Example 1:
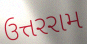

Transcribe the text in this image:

ઉત્તરરામ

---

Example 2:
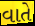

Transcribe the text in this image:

વાતે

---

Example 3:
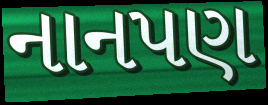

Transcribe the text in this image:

નાનપણ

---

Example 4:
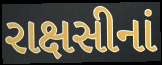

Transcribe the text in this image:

રાક્ષસીનાં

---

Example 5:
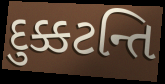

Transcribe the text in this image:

દુક્કટન્તિ